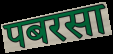
पबरसा